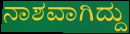
ನಾಶವಾಗಿದ್ದು